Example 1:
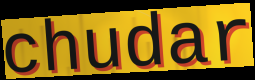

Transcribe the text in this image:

chudar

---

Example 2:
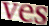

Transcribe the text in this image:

ves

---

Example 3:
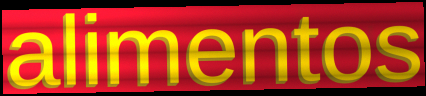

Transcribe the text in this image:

alimentos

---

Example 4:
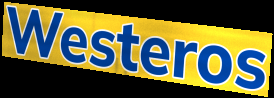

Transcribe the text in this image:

Westeros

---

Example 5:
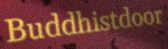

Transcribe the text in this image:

Buddhistdoor